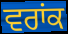
ਵਰਾਂਕ